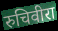
रुचिवीरा